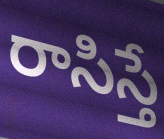
రాసిస్తే